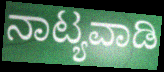
ನಾಟ್ಯವಾಡಿ